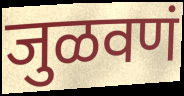
जुळवणं